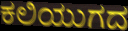
ಕಲಿಯುಗದ